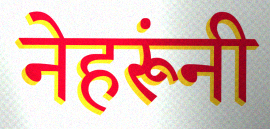
नेहरूंनी